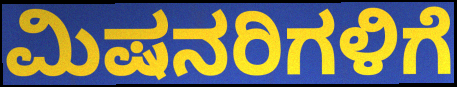
ಮಿಷನರಿಗಳಿಗೆ